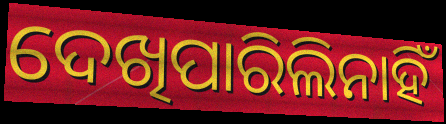
ଦେଖିପାରିଲିନାହିଁ